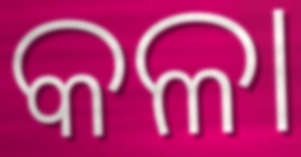
କଳା